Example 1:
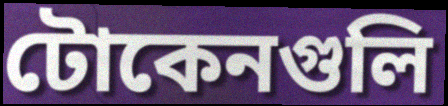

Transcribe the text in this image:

টোকেনগুলি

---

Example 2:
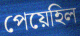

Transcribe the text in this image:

পেয়েহিল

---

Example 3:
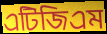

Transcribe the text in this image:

এটিজিএম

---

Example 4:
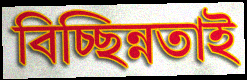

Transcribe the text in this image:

বিচ্ছিন্নতাই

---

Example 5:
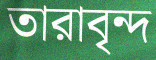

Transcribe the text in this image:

তারাবৃন্দ